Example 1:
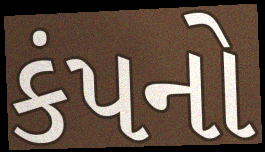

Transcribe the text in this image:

કંપનો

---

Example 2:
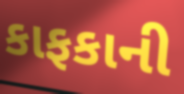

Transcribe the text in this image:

કાફકાની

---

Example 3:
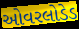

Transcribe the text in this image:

ઓવરલોડેડ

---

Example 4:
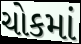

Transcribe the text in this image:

ચોકમાં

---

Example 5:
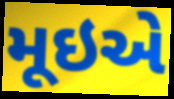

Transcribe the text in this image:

મૂઇએ